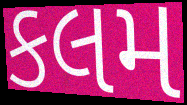
કલમ